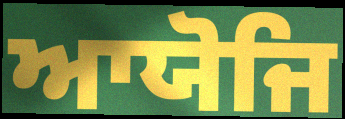
ਆਯੋਜਿ